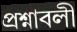
প্রশ্নাবলী